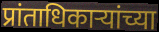
प्रांताधिकाऱ्यांच्या